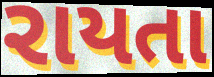
રાયતા